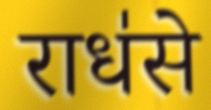
राध॑से